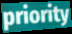
priority